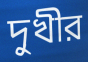
দুখীর